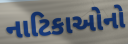
નાટિકાઓનો